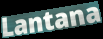
Lantana